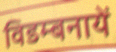
विडम्बनायें